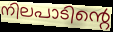
നിലപാടിന്റെ